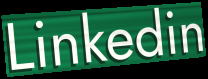
Linkedin